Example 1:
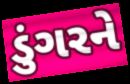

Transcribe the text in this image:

ડુંગરને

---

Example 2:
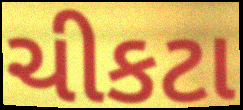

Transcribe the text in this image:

ચીકટા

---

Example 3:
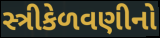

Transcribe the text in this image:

સ્ત્રીકેળવણીનો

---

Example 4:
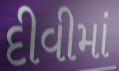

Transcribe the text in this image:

દીવીમાં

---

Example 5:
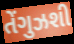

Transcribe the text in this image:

તેંગુઝશી